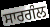
ਸਾਰਗੰਲ